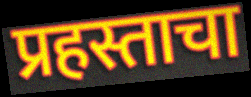
प्रहस्ताचा